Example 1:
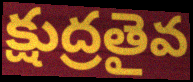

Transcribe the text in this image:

క్షుద్రతైవ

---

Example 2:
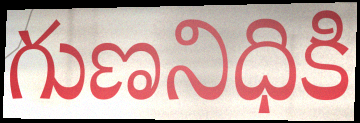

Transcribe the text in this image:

గుణనిధికి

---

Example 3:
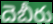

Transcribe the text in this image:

దెబీరు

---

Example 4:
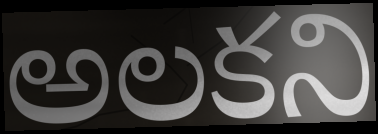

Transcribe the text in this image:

అలకని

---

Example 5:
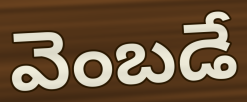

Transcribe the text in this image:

వెంబడే